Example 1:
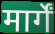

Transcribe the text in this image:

मार्गें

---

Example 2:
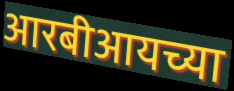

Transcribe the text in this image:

आरबीआयच्या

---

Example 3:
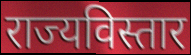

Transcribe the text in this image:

राज्यविस्तार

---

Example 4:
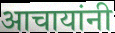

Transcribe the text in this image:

आचायांनी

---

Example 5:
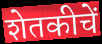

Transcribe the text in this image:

शेतकीचें